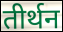
तीर्थन